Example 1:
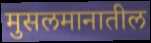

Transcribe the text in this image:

मुसलमानातील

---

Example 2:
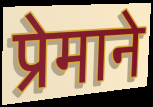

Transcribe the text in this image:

प्रेमाने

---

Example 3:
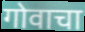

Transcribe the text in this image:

गोवाचा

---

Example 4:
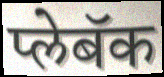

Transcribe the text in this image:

प्लेबॅक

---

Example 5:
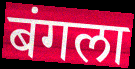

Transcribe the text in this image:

बंगला